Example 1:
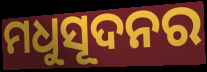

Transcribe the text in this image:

ମଧୁସୂଦନର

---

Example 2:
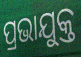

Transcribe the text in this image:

ପ୍ରଭାଯୁକ୍ତ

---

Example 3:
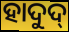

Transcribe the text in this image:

ହାଦୁଦ୍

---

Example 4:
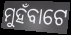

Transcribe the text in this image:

ମୁହଁବାଟେ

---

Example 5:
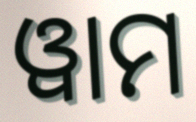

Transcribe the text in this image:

ୱାମ